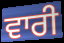
ਵਾਰੀ